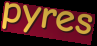
pyres